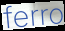
ferro